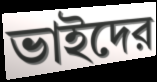
ভাইদের